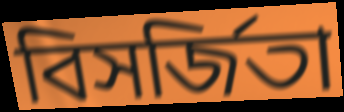
বিসর্জিতা